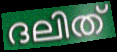
ദലിത്